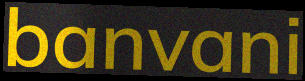
banvani